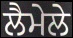
ਲੈਮੇਲੇ